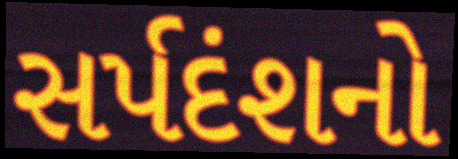
સર્પદંશનો